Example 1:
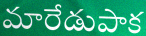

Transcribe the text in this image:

మారేడుపాక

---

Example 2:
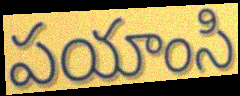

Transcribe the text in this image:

పయాంసి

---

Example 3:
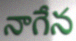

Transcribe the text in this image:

నాగేన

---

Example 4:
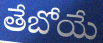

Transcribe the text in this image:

తేబోయే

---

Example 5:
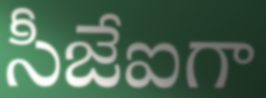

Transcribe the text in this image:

సీజేఐగా